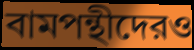
বামপন্থীদেরও